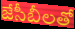
జేసీబీలతో